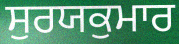
ਸੁਰਯਕੁਮਾਰ